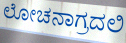
ಲೋಚನಾಗ್ರದಲಿ